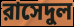
রাসেদুল